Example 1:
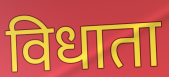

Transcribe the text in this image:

विधाता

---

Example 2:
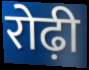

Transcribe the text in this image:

रोढ़ी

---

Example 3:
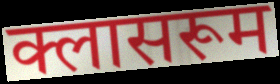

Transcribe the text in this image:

क्‍लासरूम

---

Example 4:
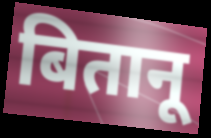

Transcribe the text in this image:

बितानू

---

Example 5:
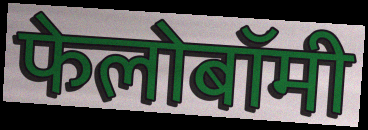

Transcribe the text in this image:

फेलोबॉमी